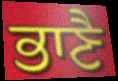
ਭਾਣੈ